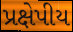
પ્રક્ષેપીય